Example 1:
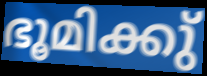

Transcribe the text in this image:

ഭൂമിക്കു്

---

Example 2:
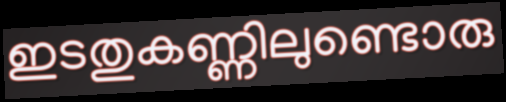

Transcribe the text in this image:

ഇടതുകണ്ണിലുണ്ടൊരു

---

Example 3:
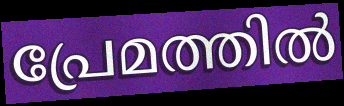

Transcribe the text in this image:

പ്രേമത്തിൽ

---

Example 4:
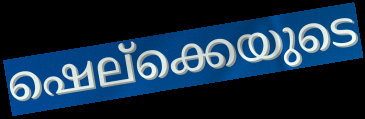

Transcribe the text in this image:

ഷെല്ക്കെയുടെ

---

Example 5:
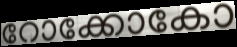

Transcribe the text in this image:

റോക്കോകോ